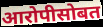
आरोपीसोबत